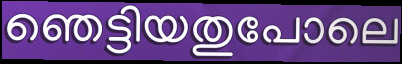
ഞെട്ടിയതുപോലെ